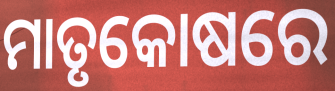
ମାତୃକୋଷରେ